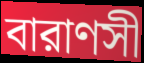
বারাণসী